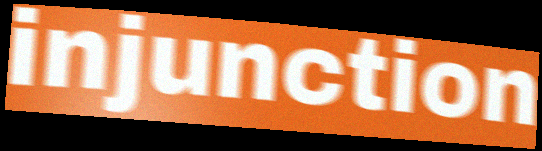
injunction